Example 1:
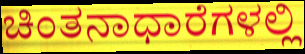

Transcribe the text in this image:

ಚಿಂತನಾಧಾರೆಗಳಲ್ಲಿ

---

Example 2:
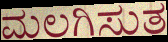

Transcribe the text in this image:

ಮಲಗಿಸುತ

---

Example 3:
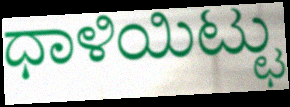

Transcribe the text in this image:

ಧಾಳಿಯಿಟ್ಟು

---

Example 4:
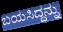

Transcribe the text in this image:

ಬಯಸಿದ್ದನ್ನು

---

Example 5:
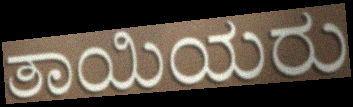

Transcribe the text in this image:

ತಾಯಿಯರು